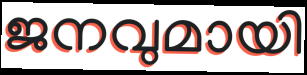
ജനവുമായി